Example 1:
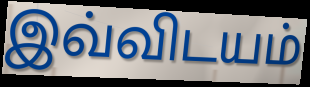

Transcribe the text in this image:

இவ்விடயம்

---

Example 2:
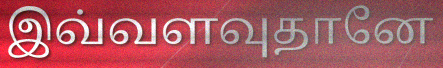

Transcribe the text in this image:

இவ்வளவுதானே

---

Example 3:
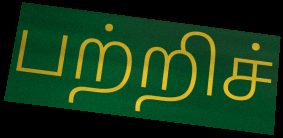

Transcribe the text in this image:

பற்றிச்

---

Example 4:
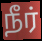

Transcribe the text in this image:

நீர்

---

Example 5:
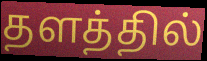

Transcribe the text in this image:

தளத்தில்